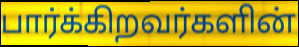
பார்க்கிறவர்களின்